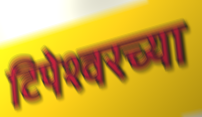
टिपेश्वरच्या